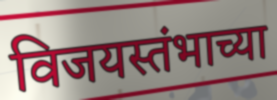
विजयस्तंभाच्या